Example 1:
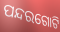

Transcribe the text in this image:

ପନ୍ଦରଗୋଟି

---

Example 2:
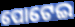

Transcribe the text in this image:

ପୋଟେଇ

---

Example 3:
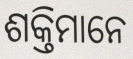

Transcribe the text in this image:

ଶକ୍ତିମାନେ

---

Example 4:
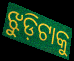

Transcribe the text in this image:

ଝୁଡ଼ିଟାକୁ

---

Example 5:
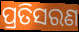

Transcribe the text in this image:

ପ୍ରତିସରଣ